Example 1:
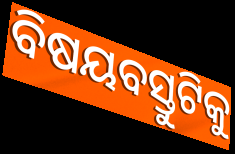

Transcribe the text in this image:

ବିଷୟବସ୍ତୁଟିକୁ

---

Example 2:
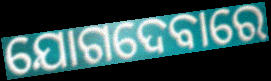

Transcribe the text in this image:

ଯୋଗଦେବାରେ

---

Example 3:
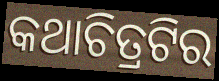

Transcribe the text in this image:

କଥାଚିତ୍ରଟିର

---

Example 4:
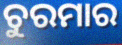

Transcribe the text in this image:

ଚୁରମାର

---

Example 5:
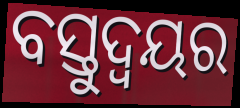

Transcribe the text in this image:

ବସ୍ତୁଦ୍ୱୟର